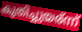
കുതിച്ചുയര്ന്ന്